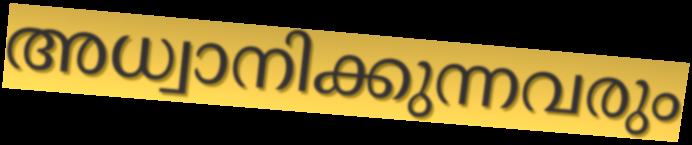
അധ്വാനിക്കുന്നവരും